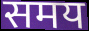
समय